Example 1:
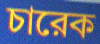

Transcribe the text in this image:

চারেক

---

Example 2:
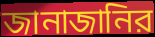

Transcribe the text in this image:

জানাজানির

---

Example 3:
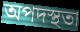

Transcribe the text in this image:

অপদস্থতা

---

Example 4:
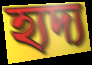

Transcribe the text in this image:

হ্যদ্য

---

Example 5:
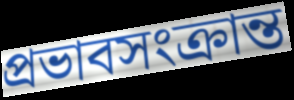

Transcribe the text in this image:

প্রভাবসংক্রান্ত